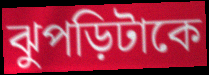
ঝুপড়িটাকে